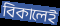
বিকালেই